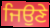
ਜਿਉਣੇ